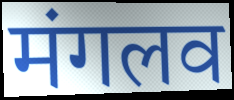
मंगलव